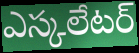
ఎస్కలేటర్